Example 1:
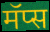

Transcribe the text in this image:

मॅप्स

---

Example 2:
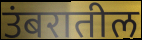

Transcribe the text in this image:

उंबरातील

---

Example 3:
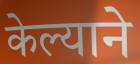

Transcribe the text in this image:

केल्‍याने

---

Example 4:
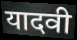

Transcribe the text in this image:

यादवी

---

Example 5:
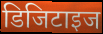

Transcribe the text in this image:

डिजिटाइज